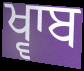
ਖ੍ਵਾਬ